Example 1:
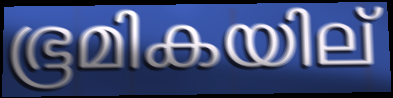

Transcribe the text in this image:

ഭൂമികയില്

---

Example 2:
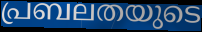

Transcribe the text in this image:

പ്രബലതയുടെ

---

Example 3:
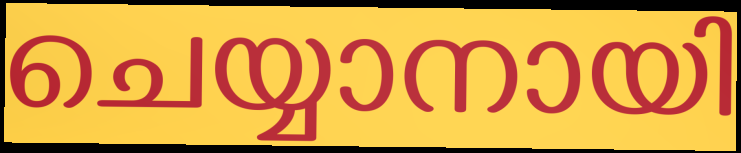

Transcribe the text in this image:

ചെയ്യാനായി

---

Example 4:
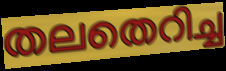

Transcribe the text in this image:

തലതെറിച്ച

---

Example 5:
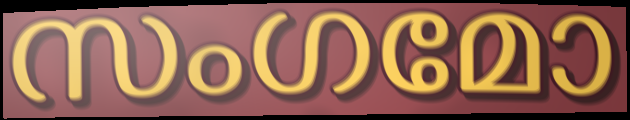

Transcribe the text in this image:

സംഗമോ